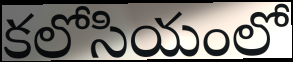
కలోసియంలో